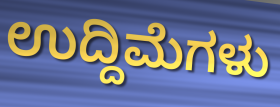
ಉದ್ದಿಮೆಗಳು